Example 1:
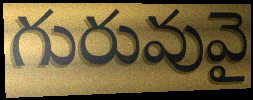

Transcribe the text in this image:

గురువువై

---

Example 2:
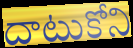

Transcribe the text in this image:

దాటుకోని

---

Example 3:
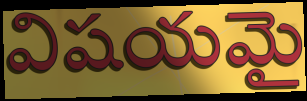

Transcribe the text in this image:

విషయమై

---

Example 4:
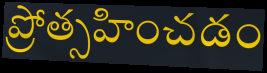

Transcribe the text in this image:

ప్రోత్సహించడం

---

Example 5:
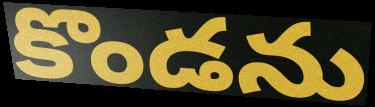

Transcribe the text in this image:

కొండను